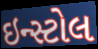
ઇન્સ્ટોલ